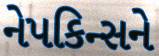
નેપકિન્સને